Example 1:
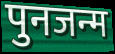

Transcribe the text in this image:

पुनजन्म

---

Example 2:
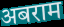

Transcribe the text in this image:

अबराम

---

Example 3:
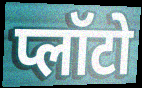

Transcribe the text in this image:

प्लॉटो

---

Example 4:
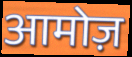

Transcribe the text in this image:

आमोज़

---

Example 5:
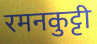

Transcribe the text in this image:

रमनकुट्टी